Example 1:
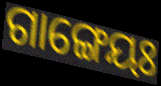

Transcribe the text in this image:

ଗାଙ୍ଗେୟଃ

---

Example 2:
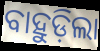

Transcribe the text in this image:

ବାହୁଡ଼ିଲା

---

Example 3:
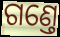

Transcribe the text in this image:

ଗଣ୍ତେ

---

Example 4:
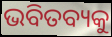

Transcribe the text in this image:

ଭବିତବ୍ୟକୁ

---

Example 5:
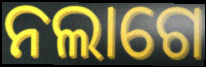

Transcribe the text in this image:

ନଲାଗେ